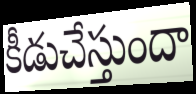
కీడుచేస్తుందా